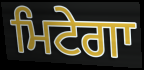
ਮਿਟੇਗਾ